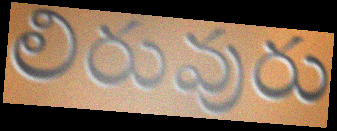
లిరువురు